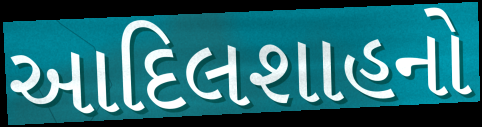
આદિલશાહનો